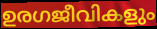
ഉരഗജീവികളും